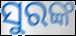
ସୁରଙ୍କ